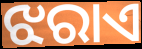
ଝରାଏ